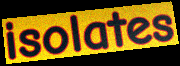
isolates